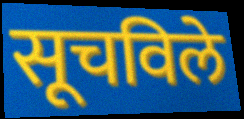
सूचविले